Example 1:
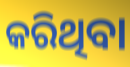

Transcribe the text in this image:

କରିଥିବା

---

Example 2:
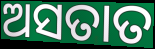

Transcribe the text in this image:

ଅସତାତ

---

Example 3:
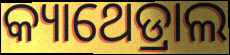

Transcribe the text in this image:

କ୍ୟାଥେଡ୍ରାଲ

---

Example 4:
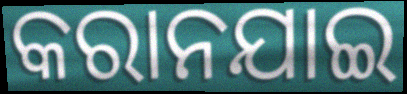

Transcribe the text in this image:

କରାନଯାଇ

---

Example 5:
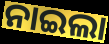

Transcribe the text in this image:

ନାଇଲା